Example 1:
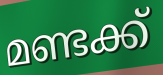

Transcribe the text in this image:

മണ്ടക്ക്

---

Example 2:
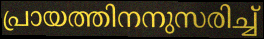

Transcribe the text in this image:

പ്രായത്തിനനുസരിച്ച്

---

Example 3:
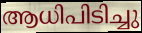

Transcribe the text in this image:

ആധിപിടിച്ചു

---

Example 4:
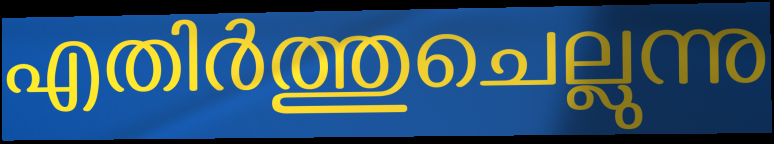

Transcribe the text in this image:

എതിർത്തുചെല്ലുന്നു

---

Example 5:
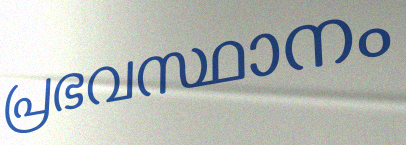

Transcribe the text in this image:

പ്രഭവസ്ഥാനം